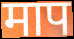
माप